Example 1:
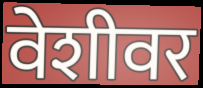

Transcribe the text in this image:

वेशीवर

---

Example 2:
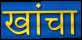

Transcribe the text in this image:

खांचा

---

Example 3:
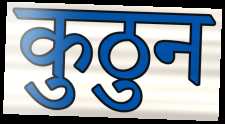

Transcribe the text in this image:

कुठुन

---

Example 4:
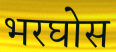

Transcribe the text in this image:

भरघोस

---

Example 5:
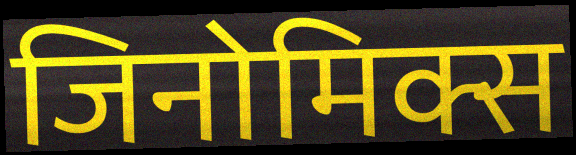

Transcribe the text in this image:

जिनोमिक्स